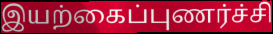
இயற்கைப்புணர்ச்சி